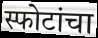
स्फोटांचा